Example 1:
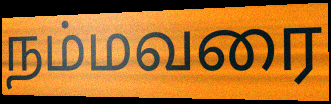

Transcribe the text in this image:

நம்மவரை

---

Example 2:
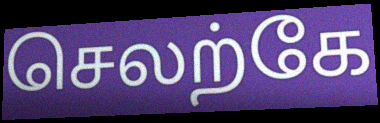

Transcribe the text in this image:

செலற்கே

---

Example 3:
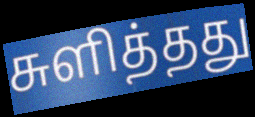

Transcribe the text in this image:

சுளித்தது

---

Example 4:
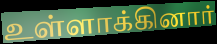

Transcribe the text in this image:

உள்ளாக்கினார்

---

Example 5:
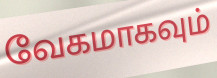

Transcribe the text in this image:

வேகமாகவும்